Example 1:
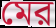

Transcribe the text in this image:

মের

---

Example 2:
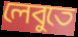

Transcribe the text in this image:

লেবুতে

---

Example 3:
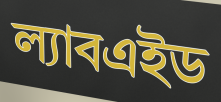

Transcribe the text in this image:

ল্যাবএইড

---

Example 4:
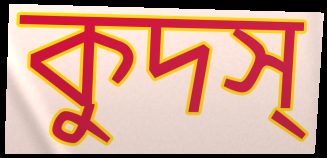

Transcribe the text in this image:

কুদস্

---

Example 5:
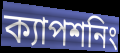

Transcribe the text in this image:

ক্যাপশনিং